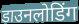
डाउनलोडिंग